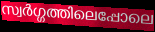
സ്വർഗ്ഗത്തിലെപ്പോലെ